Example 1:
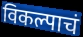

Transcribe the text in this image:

विकल्पाचं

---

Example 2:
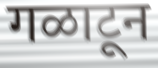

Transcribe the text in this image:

गळाटून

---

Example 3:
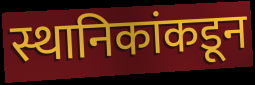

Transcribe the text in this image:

स्थानिकांकडून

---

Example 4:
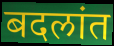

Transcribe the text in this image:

बदलांत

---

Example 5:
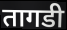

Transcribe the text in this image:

तागडी